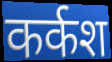
कर्कश